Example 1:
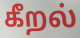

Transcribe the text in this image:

கீறல்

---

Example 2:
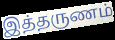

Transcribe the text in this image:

இத்தருணம்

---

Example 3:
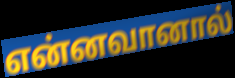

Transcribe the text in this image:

என்னவானால்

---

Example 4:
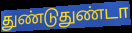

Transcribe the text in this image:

துண்டுதுண்டா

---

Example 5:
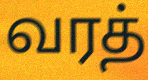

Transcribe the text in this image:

வரத்